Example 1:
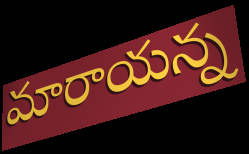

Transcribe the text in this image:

మారాయన్న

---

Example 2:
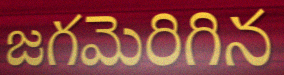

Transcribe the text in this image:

జగమెరిగిన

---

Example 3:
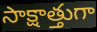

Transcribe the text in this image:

సాక్షాత్తుగా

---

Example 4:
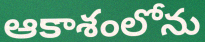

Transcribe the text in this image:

ఆకాశంలోను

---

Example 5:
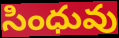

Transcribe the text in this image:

సింధువు